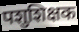
पशुशिक्षक